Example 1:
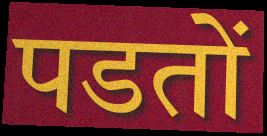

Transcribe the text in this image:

पडतों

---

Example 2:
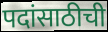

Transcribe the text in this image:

पदांसाठीची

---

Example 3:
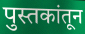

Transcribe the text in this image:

पुस्तकांतून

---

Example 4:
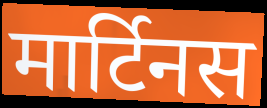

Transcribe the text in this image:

मार्टिनस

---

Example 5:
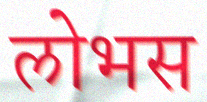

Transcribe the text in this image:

लोभस